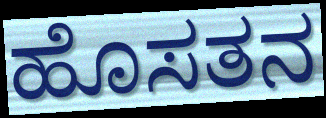
ಹೊಸತನ